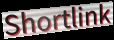
Shortlink